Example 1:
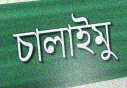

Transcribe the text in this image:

চালাইমু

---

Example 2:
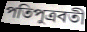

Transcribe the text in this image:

পতিপুত্রবতী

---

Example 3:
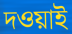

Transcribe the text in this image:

দওয়াই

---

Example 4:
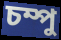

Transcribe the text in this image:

চম্পু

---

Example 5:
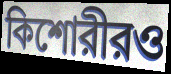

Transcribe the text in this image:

কিশোরীরও